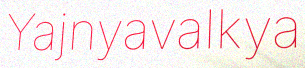
Yajnyavalkya